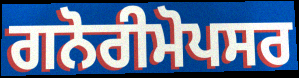
ਗਨੋਰੀਮੋਪਸਰ